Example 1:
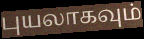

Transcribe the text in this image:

புயலாகவும்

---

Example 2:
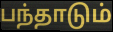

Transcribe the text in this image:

பந்தாடும்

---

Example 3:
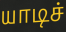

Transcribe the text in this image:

யாடிச்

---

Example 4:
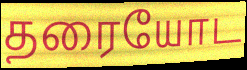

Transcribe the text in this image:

தரையோட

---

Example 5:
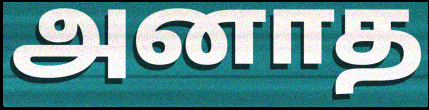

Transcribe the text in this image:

அனாத